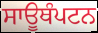
ਸਾਊਥੰਪਟਨ